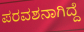
ಪರವಶನಾಗಿದ್ದೆ